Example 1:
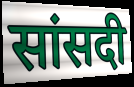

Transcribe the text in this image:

सांसदी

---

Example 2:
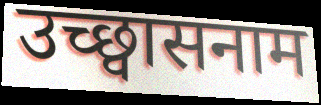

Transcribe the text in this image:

उच्छ्वासनाम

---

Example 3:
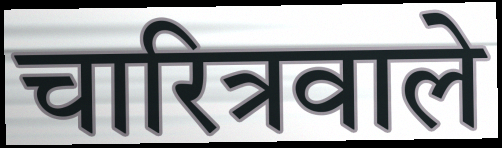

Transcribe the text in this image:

चारित्रवाले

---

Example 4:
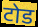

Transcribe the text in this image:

टोड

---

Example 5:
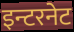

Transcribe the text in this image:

इन्‍टरनेट